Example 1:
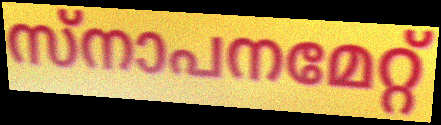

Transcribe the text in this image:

സ്നാപനമേറ്റ്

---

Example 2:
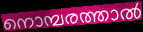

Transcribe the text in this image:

നൊമ്പരത്താൽ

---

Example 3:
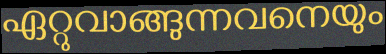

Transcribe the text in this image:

ഏറ്റുവാങ്ങുന്നവനെയും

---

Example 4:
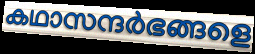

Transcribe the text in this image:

കഥാസന്ദർഭങ്ങളെ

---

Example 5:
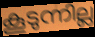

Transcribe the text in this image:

കൂടുന്നില്ല